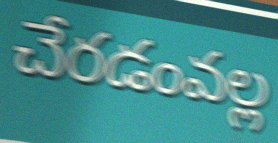
చేరడంవల్ల